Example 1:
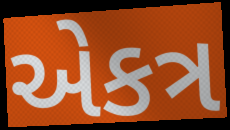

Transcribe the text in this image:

એકત્ર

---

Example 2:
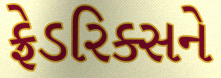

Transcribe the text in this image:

ફ્રેડરિક્સને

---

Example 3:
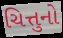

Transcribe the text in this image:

ચિત્તુનો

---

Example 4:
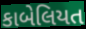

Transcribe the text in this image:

કાબેલિયત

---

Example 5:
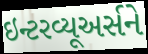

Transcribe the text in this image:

ઇન્ટરવ્યૂઅર્સને